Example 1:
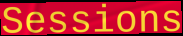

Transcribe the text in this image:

Sessions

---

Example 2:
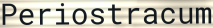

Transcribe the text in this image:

Periostracum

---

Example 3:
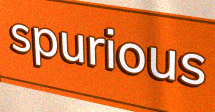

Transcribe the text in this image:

spurious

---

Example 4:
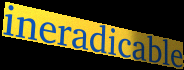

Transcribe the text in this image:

ineradicable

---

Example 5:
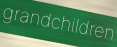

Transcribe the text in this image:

grandchildren